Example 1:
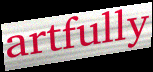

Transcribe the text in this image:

artfully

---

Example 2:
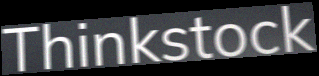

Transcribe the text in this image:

Thinkstock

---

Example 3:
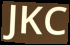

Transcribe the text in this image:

JKC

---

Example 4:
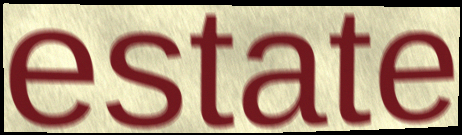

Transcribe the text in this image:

estate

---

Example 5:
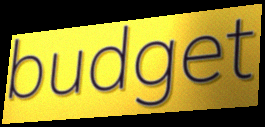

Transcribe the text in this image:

budget